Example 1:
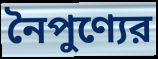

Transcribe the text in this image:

নৈপুণ্যের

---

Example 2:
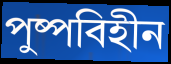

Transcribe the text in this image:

পুষ্পবিহীন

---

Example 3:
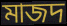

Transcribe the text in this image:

মাজদ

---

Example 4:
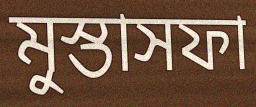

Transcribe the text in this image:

মুস্তাসফা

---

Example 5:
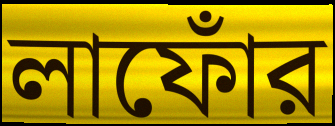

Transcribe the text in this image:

লাফোঁর